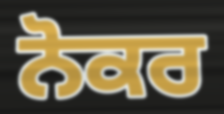
ਨੋਕਰ